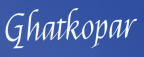
Ghatkopar